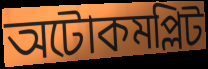
অটোকমপ্লিট